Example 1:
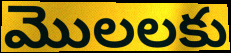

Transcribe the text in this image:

మొలలకు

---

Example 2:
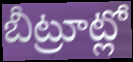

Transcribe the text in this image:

బీట్రూట్లో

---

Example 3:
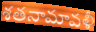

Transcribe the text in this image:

శతనామావళీ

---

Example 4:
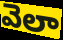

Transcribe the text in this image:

వెలా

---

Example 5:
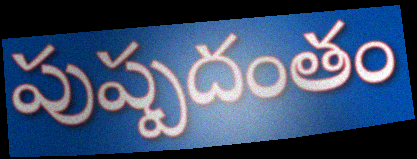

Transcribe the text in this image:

పుష్పదంతం